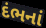
દંભનાં